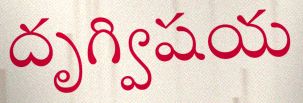
దృగ్విషయ